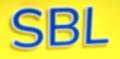
SBL